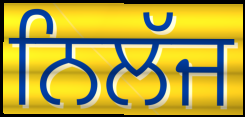
ਨਿਲੱਜ